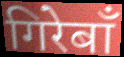
गिरेबाँ